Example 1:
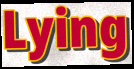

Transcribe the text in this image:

Lying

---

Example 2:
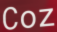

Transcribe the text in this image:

Coz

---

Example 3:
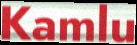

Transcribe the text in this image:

Kamlu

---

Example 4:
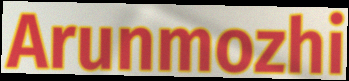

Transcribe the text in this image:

Arunmozhi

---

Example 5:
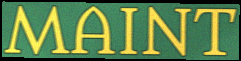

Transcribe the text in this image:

MAINT